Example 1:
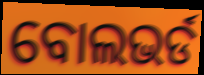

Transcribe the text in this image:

ବୋଲଭର୍ଡ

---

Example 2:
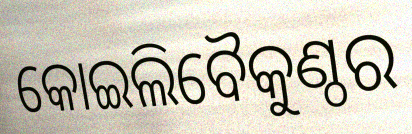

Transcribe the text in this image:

କୋଇଲିବୈକୁଣ୍ଠର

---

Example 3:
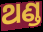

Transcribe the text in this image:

ଥଣ୍ଡ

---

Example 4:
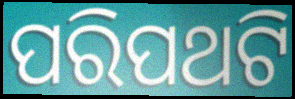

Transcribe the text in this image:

ପରିପଥଟି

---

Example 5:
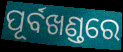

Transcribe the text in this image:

ପୂର୍ବଖଣ୍ଡରେ